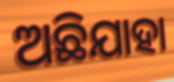
ଅଛିଯାହା